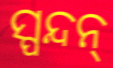
ସ୍ପନ୍ଦନ୍